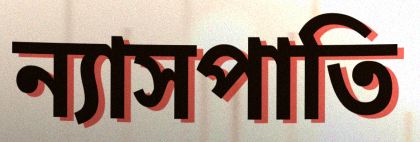
ন্যাসপাতি